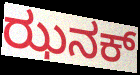
ಝನಕ್